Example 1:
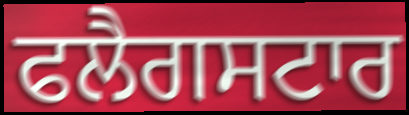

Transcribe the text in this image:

ਫਲੈਗਸਟਾਰ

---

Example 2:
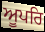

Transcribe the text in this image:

ਅੂਪਰਿ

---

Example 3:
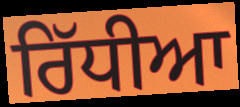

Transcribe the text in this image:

ਰਿੱਧੀਆ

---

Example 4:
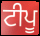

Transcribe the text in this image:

ਟੀਪੂ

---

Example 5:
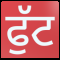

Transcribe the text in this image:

ਫੁੱਟ